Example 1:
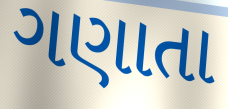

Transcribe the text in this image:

ગણાતા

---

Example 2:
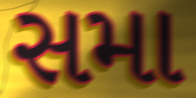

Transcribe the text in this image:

સમા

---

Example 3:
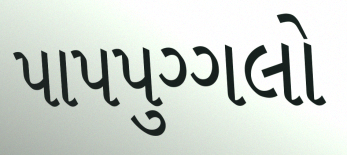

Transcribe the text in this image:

પાપપુગ્ગલો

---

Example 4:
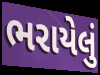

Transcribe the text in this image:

ભરાયેલું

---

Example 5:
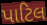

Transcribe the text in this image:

પાટિલ